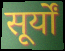
सूर्यों